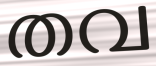
തവ